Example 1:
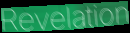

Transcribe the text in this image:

Revelation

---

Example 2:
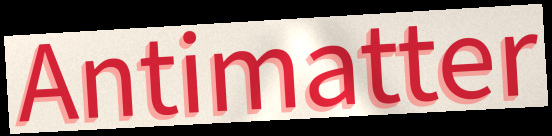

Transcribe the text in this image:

Antimatter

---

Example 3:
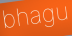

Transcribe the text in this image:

bhagu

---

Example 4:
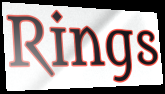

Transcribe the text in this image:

Rings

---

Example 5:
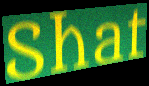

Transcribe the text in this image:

Shat